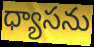
ధ్యాసను